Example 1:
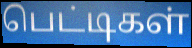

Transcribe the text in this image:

பெட்டிகள்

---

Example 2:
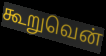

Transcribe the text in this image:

கூறுவென்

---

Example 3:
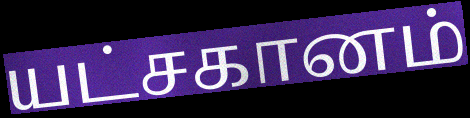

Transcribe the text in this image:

யட்சகானம்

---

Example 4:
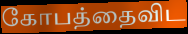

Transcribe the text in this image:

கோபத்தைவிட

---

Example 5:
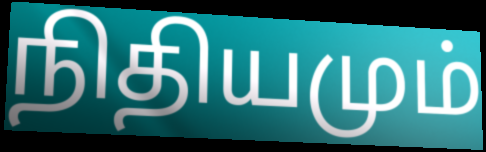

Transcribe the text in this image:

நிதியமும்